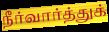
நீர்வார்த்துக்